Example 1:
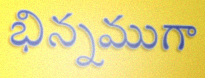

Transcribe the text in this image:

భిన్నముగా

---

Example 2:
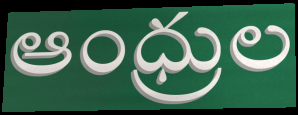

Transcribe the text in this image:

ఆంధ్రుల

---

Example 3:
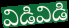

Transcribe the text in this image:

విడివిడి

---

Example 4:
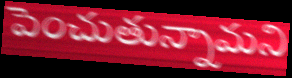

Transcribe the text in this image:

పెంచుతున్నామని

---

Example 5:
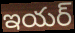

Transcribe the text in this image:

ఇయర్